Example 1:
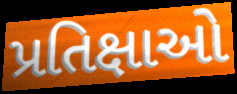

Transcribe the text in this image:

પ્રતિક્ષાઓ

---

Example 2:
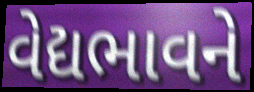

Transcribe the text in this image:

વેદ્યભાવને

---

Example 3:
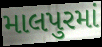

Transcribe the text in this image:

માલપુરમાં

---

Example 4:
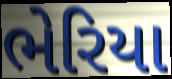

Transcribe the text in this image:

ભેરિયા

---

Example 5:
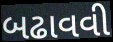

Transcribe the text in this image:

બઢાવવી